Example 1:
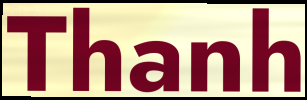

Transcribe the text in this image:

Thanh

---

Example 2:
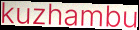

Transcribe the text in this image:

kuzhambu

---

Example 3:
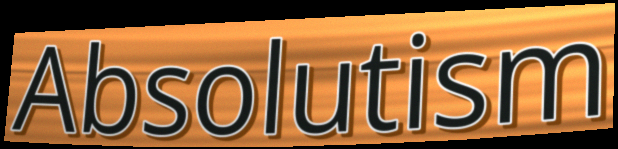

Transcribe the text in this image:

Absolutism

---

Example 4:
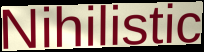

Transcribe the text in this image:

Nihilistic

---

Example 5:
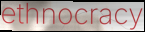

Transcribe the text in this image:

ethnocracy